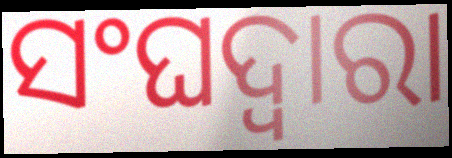
ସଂଘଦ୍ୱାରା